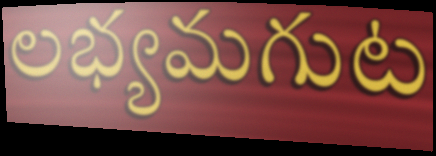
లభ్యమగుట